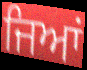
ਜਿਆਂ